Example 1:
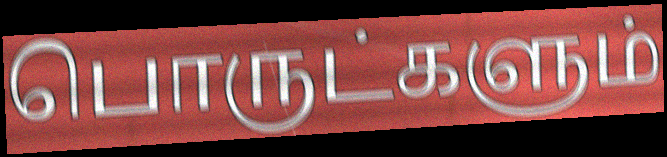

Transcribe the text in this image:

பொருட்களும்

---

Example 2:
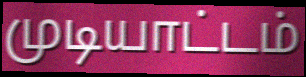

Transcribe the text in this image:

முடியாட்டம்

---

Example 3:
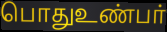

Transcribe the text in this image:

பொதுஉண்பர்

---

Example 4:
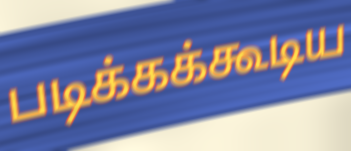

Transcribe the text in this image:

படிக்கக்கூடிய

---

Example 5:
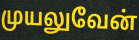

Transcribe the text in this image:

முயலுவேன்